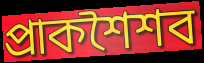
প্রাকশৈশব